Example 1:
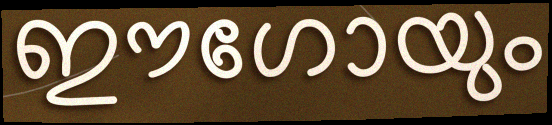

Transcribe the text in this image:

ഈഗോയും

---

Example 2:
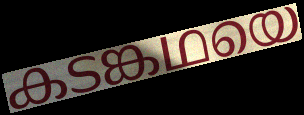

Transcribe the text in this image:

കടങ്കഥയെ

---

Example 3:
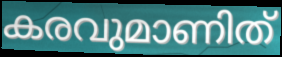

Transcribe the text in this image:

കരവുമാണിത്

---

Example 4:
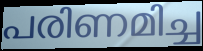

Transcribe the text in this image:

പരിണമിച്ച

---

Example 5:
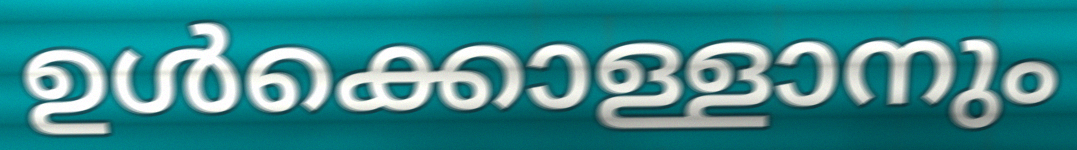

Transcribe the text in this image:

ഉൾക്കൊള്ളാനും